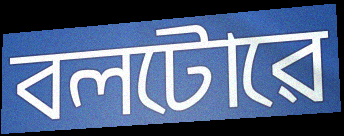
বলটোৱে